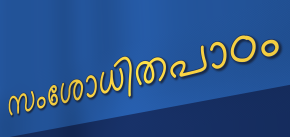
സംശോധിതപാഠം